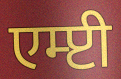
एम्प्टी